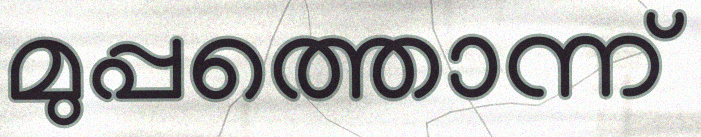
മുപ്പത്തൊന്ന്